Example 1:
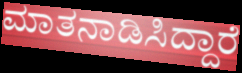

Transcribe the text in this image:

ಮಾತನಾಡಿಸಿದ್ದಾರೆ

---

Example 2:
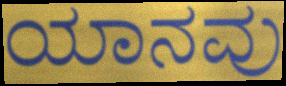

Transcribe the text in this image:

ಯಾನವು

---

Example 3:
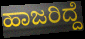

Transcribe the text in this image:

ಹಾಜರಿದ್ದೆ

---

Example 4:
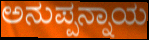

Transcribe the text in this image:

ಅನುಪ್ಪನ್ನಾಯ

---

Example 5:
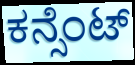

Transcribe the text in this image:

ಕನ್ಸೆಂಟ್